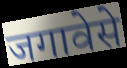
जगावेसे